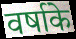
वर्षाके